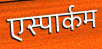
एस्पार्कम